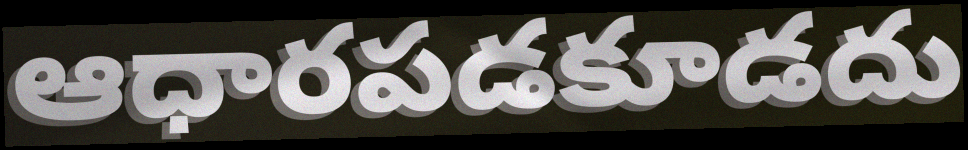
ఆధారపడకూడదు